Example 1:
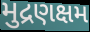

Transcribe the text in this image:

મુદ્રણક્ષમ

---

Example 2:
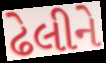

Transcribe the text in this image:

ઢેલીને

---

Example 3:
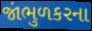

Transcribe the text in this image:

જાંભુળકરના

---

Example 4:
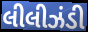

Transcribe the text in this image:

લીલીઝંડી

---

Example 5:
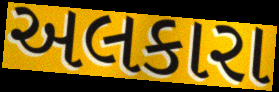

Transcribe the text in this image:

અલકારા